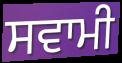
ਸਵਾਮੀ